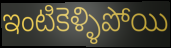
ఇంటికెళ్ళిపోయి